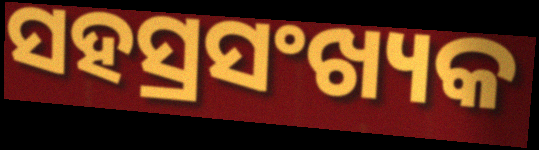
ସହସ୍ରସଂଖ୍ୟକ